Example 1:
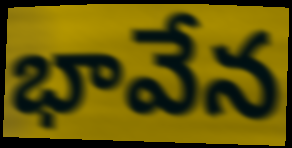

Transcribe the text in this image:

భావేన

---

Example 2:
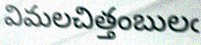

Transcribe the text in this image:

విమలచిత్తంబులఁ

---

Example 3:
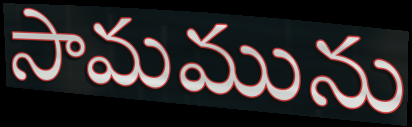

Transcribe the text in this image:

సామమును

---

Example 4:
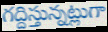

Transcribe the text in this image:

గద్దిస్తున్నట్లుగా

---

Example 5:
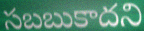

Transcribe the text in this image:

సబబుకాదని